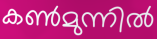
കൺമുന്നിൽ